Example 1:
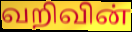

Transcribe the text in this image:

வறிவின்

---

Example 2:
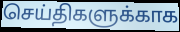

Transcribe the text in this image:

செய்திகளுக்காக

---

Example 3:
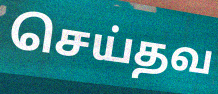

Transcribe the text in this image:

செய்தவ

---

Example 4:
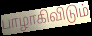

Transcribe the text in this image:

பாழாகிவிடும்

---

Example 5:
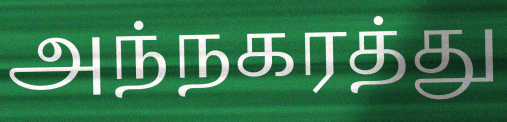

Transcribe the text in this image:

அந்நகரத்து